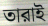
তারাই